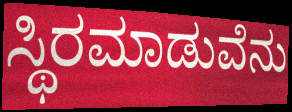
ಸ್ಥಿರಮಾಡುವೆನು